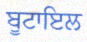
ਬੂਟਾਇਲ